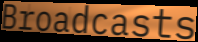
Broadcasts